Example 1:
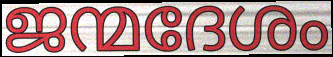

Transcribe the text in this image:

ജന്മദേശം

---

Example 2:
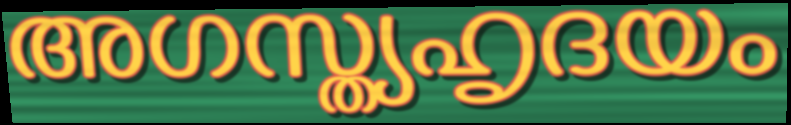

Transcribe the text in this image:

അഗസ്ത്യഹൃദയം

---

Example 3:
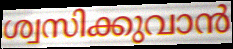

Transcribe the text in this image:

ശ്വസിക്കുവാൻ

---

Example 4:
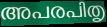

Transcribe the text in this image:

അപരപിതൃ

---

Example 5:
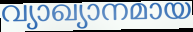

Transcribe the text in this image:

വ്യാഖ്യാനമായ